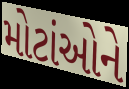
મોટાંઓને